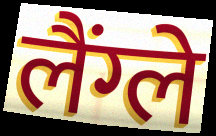
लैंग्ले